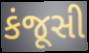
કંજૂસી